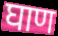
घाण